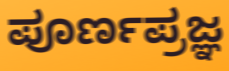
ಪೂರ್ಣಪ್ರಜ್ಞ